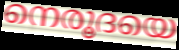
നെരൂദയെ